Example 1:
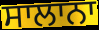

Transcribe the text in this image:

ਸਾਲਾਨਾ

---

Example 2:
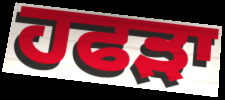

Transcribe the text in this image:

ਹਫੜਾ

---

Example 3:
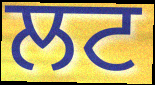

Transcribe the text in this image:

ਲਟ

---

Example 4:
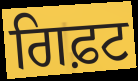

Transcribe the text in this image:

ਗਿਫ਼ਟ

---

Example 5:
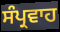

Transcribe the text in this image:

ਸੰਪ੍ਰਵਾਹ